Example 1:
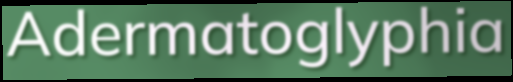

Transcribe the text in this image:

Adermatoglyphia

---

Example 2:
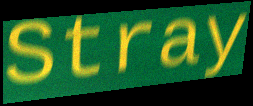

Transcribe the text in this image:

Stray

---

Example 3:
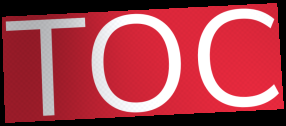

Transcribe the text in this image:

TOC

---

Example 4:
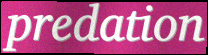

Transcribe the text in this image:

predation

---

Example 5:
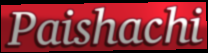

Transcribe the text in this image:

Paishachi